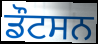
ਡੌਟਸਨ